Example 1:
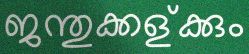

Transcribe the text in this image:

ജന്തുക്കള്ക്കും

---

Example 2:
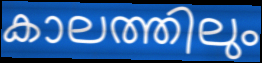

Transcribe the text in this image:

കാലത്തിലും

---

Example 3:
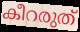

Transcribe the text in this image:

കീറരുത്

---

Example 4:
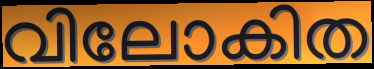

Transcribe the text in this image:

വിലോകിത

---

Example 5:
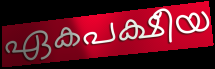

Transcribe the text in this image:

ഏകപക്ഷീയ